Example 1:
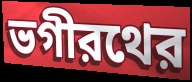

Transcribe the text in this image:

ভগীরথের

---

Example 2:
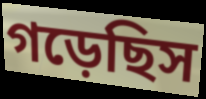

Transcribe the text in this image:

গড়েছিস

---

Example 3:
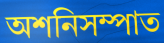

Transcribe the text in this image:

অশনিসম্পাত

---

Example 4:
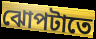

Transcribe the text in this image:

ঝোপটাতে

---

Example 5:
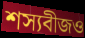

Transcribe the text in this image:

শস্যবীজও